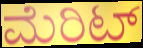
ಮೆರಿಟ್